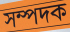
সম্পদক